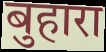
बुहारा